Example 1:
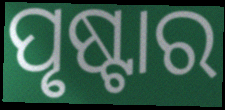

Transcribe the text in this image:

ପୃଷ୍ଟାର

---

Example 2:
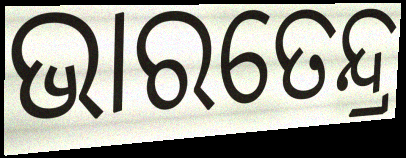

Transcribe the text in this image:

ଭାରତେନ୍ଦ୍ର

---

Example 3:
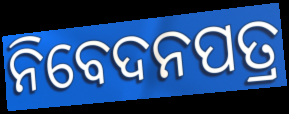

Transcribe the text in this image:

ନିବେଦନପତ୍ର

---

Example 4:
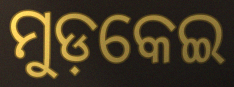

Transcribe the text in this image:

ମୁଡ଼କେଇ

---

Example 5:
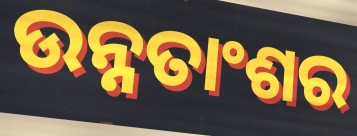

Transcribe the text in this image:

ଉନ୍ନତାଂଶର